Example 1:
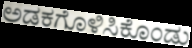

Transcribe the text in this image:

ಅಡಕಗೊಳಿಸಿಕೊಂಡು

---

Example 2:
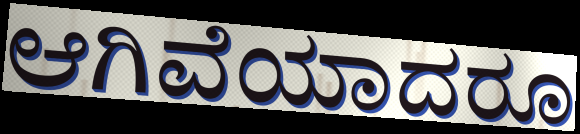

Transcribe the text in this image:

ಆಗಿವೆಯಾದರೂ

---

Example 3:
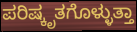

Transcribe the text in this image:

ಪರಿಷ್ಕೃತಗೊಳ್ಳುತ್ತಾ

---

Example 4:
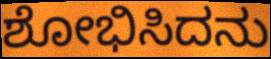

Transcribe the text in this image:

ಶೋಭಿಸಿದನು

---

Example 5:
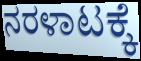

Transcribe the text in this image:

ನರಳಾಟಕ್ಕೆ